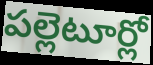
పల్లెటూర్లో